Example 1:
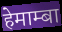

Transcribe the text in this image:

हेमाम्बा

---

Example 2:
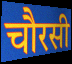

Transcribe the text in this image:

चौरसी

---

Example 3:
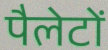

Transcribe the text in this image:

पैलेटों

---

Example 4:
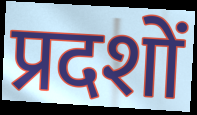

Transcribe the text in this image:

प्रदशों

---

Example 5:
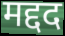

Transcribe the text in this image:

मद्दद